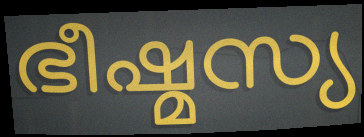
ഭീഷ്മസ്യ